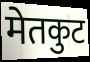
मेतकुट